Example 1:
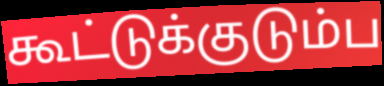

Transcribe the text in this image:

கூட்டுக்குடும்ப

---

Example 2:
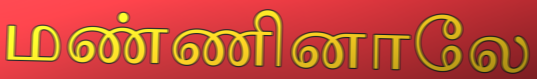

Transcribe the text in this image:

மண்ணினாலே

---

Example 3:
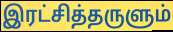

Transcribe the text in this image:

இரட்சித்தருளும்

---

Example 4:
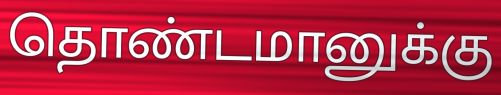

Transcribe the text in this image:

தொண்டமானுக்கு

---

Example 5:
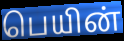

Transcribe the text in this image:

பெயின்